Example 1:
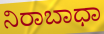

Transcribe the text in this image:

ನಿರಾಬಾಧಾ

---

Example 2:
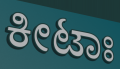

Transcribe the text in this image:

ಕೀಟಾಃ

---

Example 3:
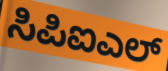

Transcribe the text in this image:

ಸಿಪಿಐಎಲ್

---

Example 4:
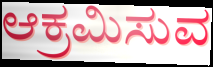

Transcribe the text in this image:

ಆಕ್ರಮಿಸುವ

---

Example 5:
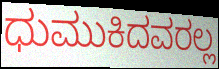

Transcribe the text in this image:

ಧುಮುಕಿದವರಲ್ಲ